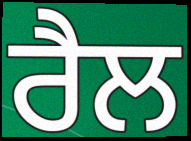
ਰੈਲ